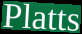
Platts